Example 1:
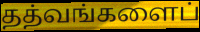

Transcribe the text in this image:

தத்வங்களைப்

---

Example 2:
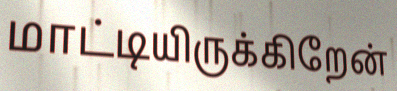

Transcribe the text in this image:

மாட்டியிருக்கிறேன்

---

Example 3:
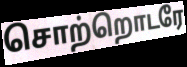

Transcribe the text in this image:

சொற்றொடரே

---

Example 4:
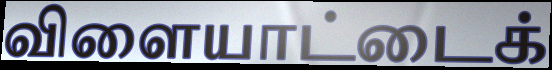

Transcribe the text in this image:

விளையாட்டைக்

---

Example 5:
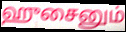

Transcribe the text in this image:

ஹுசைனும்